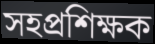
সহপ্রশিক্ষক